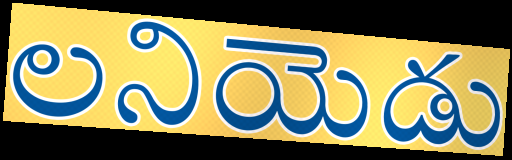
లనియెడు